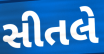
સીતલે